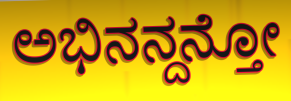
ಅಭಿನನ್ದನ್ತೋ